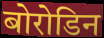
बोरोडिन